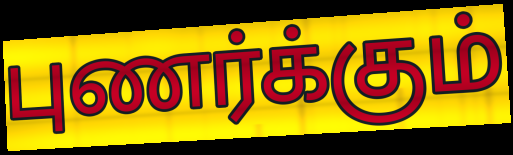
புணர்க்கும்